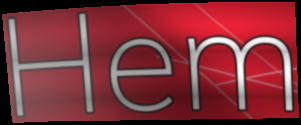
Hem